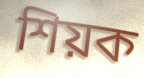
শিয়ক